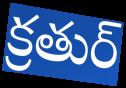
క్రతుర్